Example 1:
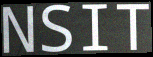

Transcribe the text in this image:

NSIT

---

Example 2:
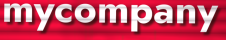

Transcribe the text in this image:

mycompany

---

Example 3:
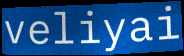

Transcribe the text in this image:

veliyai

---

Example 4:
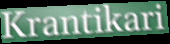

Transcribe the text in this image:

Krantikari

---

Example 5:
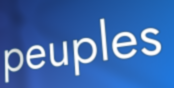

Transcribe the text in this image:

peuples